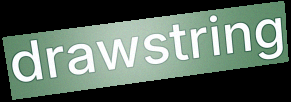
drawstring